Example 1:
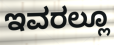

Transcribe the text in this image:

ಇವರಲ್ಲೂ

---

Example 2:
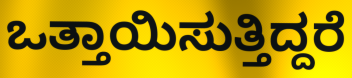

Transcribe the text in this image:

ಒತ್ತಾಯಿಸುತ್ತಿದ್ದರೆ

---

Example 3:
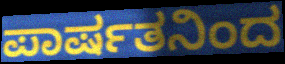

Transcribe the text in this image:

ಪಾರ್ಷತನಿಂದ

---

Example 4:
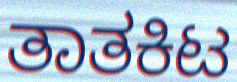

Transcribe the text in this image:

ತಾತಕಿಟ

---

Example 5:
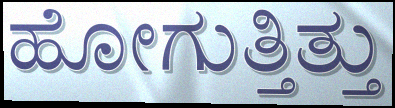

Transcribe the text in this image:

ಹೋಗುತ್ತಿತ್ತು